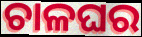
ଚାଳଘର